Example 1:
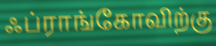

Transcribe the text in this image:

ஃப்ராங்கோவிற்கு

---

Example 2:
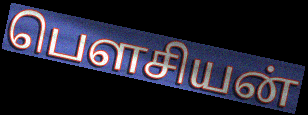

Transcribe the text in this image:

பௌசியன்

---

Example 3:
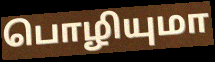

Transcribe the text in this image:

பொழியுமா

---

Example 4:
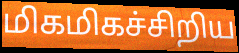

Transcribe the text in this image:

மிகமிகச்சிறிய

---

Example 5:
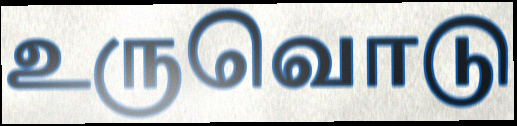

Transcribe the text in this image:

உருவொடு